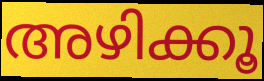
അഴിക്കൂ